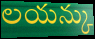
లయన్కు